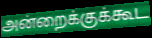
அன்றைக்குக்கூட